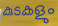
കുടകളും